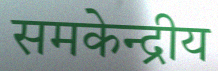
समकेन्द्रीय